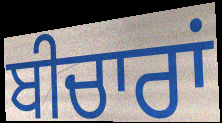
ਬੀਚਾਰਾਂ